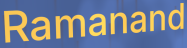
Ramanand